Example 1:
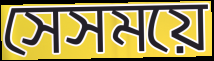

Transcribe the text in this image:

সেসময়ে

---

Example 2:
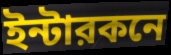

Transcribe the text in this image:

ইন্টারকনে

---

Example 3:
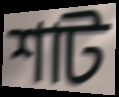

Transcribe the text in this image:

শাট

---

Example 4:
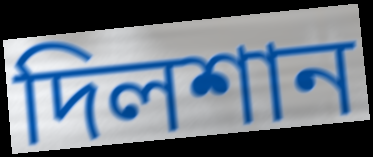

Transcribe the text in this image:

দিলশান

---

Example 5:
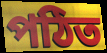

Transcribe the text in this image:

পঠিত